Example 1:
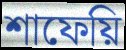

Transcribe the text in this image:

শাফেয়ি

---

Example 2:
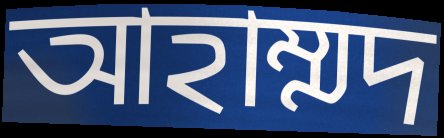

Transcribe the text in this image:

আহাম্মদ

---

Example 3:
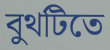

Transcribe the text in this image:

বুথটিতে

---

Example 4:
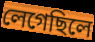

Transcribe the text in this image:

লেগেছিলে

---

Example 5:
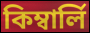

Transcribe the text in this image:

কিম্বার্লি